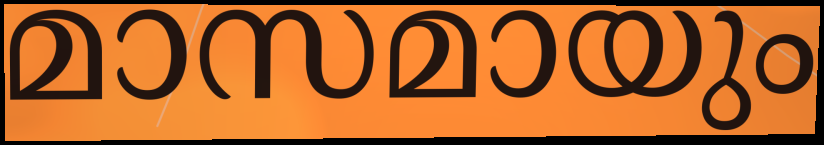
മാസമായും